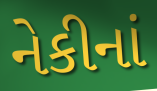
નેકીનાં